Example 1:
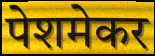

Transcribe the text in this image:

पेशमेकर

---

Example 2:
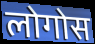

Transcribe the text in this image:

लोगोस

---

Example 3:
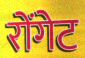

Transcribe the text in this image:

रोंगेट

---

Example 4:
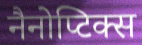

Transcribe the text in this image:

नैनोप्टिक्स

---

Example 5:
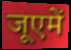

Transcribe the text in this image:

जूएमें